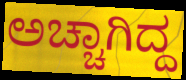
ಅಚ್ಚಾಗಿದ್ದ